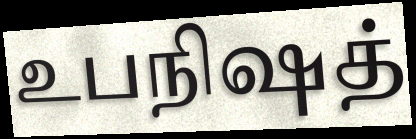
உபநிஷத்